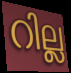
റില്ല